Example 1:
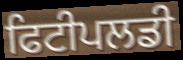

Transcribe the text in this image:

ਫਿਟੀਪਲਡੀ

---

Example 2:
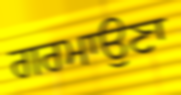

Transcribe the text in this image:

ਗਰਮਾਉਣਾ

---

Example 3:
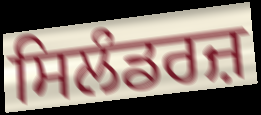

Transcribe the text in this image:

ਸਿਲੰਡਰਜ਼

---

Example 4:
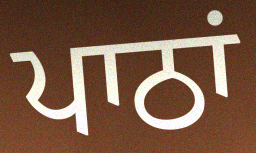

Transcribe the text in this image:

ਪਾਠਾਂ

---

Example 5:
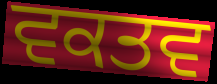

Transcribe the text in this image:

ਵਕਤਵ